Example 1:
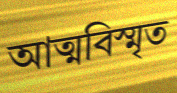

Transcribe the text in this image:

আত্মবিস্মৃত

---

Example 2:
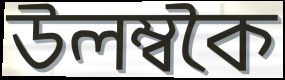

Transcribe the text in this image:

উলম্বকৈ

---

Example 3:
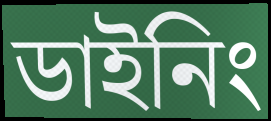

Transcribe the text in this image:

ডাইনিং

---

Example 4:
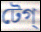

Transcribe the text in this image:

টেগ্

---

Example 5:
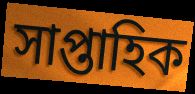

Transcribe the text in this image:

সাপ্তাহিক